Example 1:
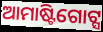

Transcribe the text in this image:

ଆମାଷ୍ଟିଗୋଟ୍ସ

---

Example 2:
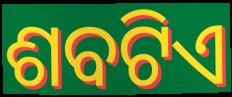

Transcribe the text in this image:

ଶବଟିଏ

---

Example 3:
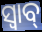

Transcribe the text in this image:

ସ୍ବାବ୍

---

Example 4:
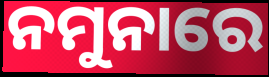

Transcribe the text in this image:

ନମୁନାରେ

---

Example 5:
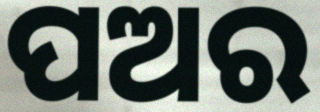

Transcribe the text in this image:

ପଅର